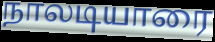
நாலடியாரை